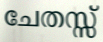
ചേതസ്സ്